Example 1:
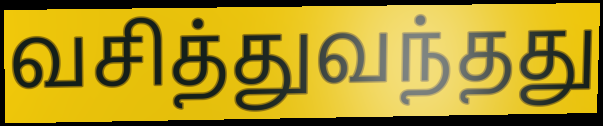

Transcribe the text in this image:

வசித்துவந்தது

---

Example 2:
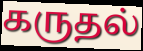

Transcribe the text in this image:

கருதல்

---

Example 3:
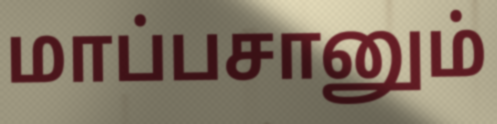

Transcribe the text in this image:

மாப்பசானும்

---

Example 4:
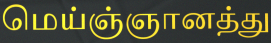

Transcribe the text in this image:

மெய்ஞ்ஞானத்து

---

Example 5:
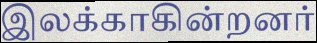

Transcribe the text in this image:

இலக்காகின்றனர்